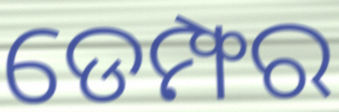
ଡେମ୍ଫର